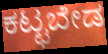
ಕಟ್ಟಬೇಡ